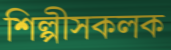
শিল্পীসকলক